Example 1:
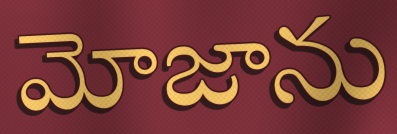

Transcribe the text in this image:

మోజాను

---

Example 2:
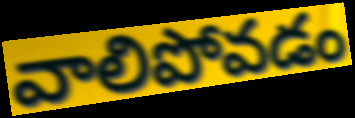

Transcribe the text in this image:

వాలిపోవడం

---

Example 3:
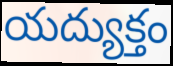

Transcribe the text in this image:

యద్యుక్తం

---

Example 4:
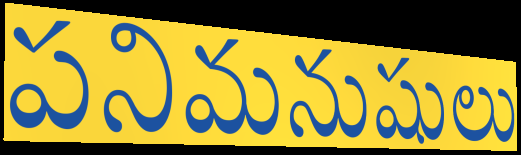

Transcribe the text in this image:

పనిమనుషులు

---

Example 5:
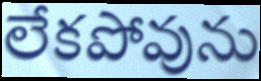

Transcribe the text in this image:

లేకపోవును